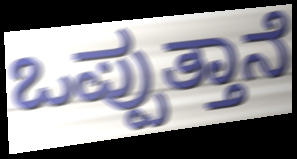
ಒಪ್ಪುತ್ತಾನೆ